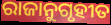
ରାଜାନୁଗୃହୀତ